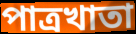
পাত্রখাতা